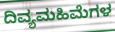
ದಿವ್ಯಮಹಿಮೆಗಳ